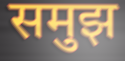
समुझ